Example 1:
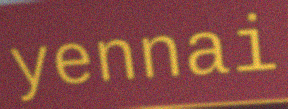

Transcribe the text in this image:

yennai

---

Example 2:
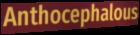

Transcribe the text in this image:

Anthocephalous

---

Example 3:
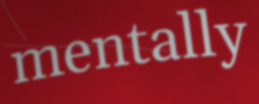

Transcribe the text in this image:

mentally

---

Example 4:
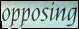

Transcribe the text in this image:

opposing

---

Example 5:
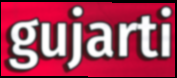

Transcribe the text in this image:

gujarti